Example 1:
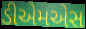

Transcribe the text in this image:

ડીએમએસ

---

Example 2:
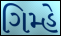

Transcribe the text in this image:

ગિમ્હે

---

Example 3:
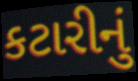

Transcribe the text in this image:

કટારીનું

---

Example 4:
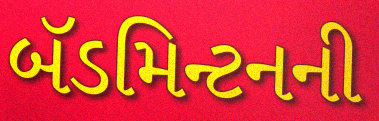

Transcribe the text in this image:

બૅડમિન્ટનની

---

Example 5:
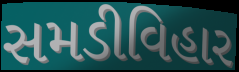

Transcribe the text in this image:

સમડીવિહાર